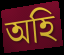
অহি